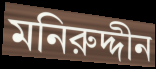
মনিরুদ্দীন